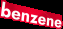
benzene